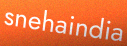
snehaindia